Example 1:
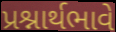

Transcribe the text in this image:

પ્રશ્નાર્થભાવે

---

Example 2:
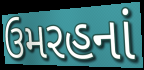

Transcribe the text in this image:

ઉમરહનાં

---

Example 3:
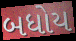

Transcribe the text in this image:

બધોય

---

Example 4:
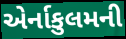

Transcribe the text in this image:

એર્નાકુલમની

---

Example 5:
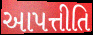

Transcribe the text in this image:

આપત્તીતિ